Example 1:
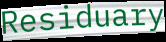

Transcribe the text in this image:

Residuary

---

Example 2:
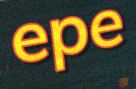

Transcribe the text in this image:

epe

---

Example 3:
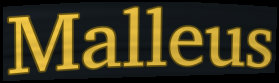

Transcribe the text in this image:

Malleus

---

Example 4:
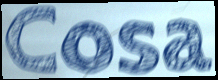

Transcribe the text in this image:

Cosa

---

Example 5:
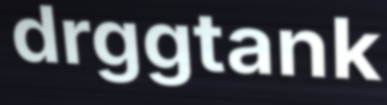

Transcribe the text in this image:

drggtank